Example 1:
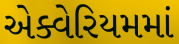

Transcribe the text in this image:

એક્વેરિયમમાં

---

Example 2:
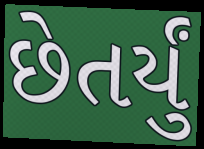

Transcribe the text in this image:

છેતર્યું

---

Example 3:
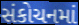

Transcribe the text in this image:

સંકોચનમાં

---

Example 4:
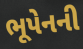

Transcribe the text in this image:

ભૂપેનની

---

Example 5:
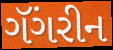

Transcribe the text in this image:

ગૅંગરીન